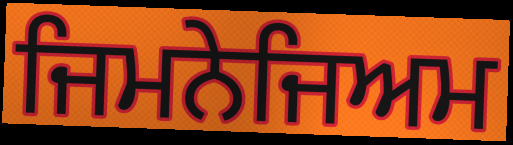
ਜਿਮਨੇਜਿਅਮ